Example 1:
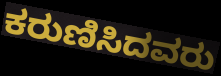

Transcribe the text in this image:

ಕರುಣಿಸಿದವರು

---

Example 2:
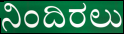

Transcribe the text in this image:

ನಿಂದಿರಲು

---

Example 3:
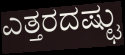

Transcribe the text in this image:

ಎತ್ತರದಷ್ಟು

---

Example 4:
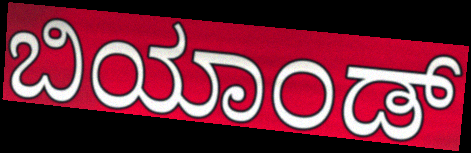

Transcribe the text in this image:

ಬಿಯಾಂಡ್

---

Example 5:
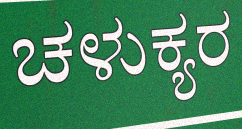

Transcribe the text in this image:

ಚಳುಕ್ಯರ